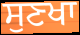
ਸੁਣਖਾ